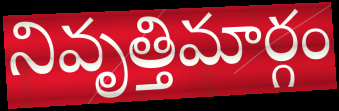
నివృత్తిమార్గం